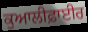
ਕੁਆਲੀਫ਼ਾਈਰ